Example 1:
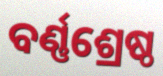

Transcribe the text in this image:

ବର୍ଣ୍ଣଶ୍ରେଷ୍ଠ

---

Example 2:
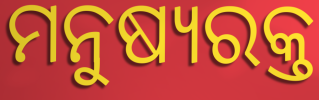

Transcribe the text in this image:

ମନୁଷ୍ଯରକ୍ତ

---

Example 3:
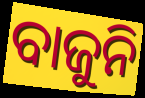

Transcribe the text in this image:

ବାଜୁନି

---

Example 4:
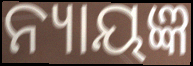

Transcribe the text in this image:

ନ୍ୟାୟଜ୍ଞ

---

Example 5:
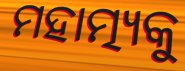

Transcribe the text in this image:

ମହାତ୍ମ୍ୟକୁ